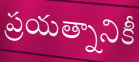
ప్రయత్నానికీ